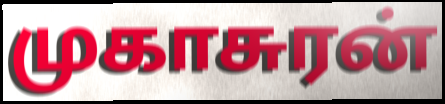
முகாசுரன்